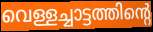
വെള്ളച്ചാട്ടത്തിന്റെ